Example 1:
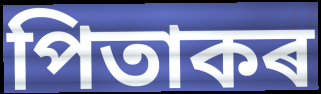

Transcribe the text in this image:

পিতাকৰ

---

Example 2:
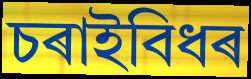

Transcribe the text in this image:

চৰাইবিধৰ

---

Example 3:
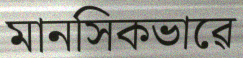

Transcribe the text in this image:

মানসিকভাৱে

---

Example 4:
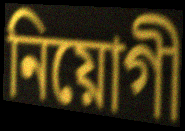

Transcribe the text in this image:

নিয়োগী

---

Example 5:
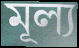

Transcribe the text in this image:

মূল্য